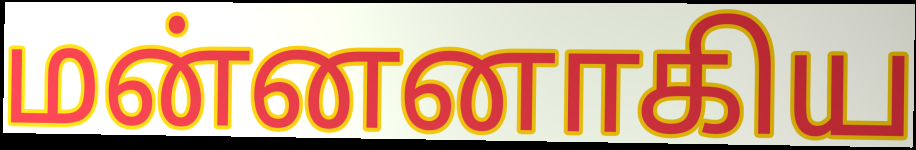
மன்னனாகிய